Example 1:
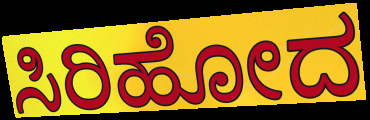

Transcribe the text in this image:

ಸಿರಿಹೋದ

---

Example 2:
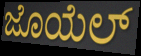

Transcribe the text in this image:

ಜೊಯೆಲ್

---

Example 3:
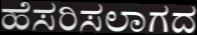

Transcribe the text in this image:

ಹೆಸರಿಸಲಾಗದ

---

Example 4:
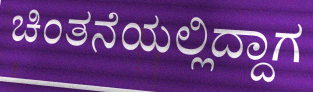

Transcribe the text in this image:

ಚಿಂತನೆಯಲ್ಲಿದ್ದಾಗ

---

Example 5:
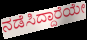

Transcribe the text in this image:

ನಡೆಸಿದ್ದಾರೆಯೇ